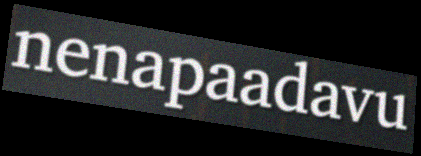
nenapaadavu